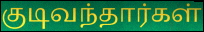
குடிவந்தார்கள்